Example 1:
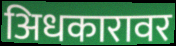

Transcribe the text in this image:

अिधकारावर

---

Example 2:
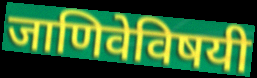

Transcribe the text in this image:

जाणिवेविषयी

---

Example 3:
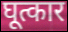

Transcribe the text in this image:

घूत्कार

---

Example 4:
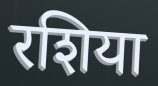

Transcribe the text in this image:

रशिया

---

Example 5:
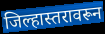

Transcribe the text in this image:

जिल्हास्तरावरून